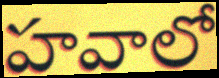
హవాలో